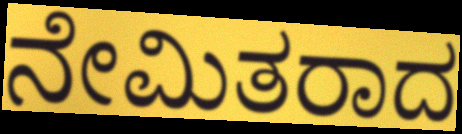
ನೇಮಿತರಾದ